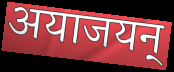
अयाजयन्